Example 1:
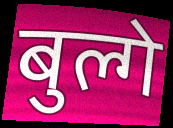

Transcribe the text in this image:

बुल्गे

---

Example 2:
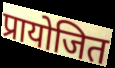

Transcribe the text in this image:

प्रायोजित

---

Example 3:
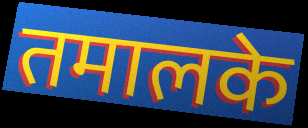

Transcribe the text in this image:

तमालके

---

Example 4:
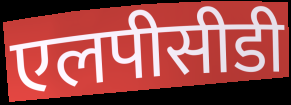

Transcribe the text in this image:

एलपीसीडी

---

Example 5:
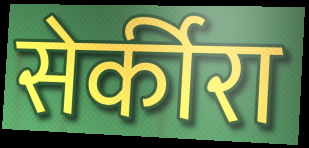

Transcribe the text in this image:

सेर्कीरा